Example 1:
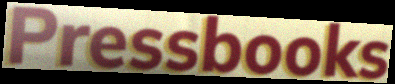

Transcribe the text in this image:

Pressbooks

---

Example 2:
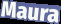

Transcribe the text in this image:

Maura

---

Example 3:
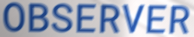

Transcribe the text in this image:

OBSERVER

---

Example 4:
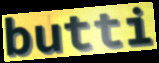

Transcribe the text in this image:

butti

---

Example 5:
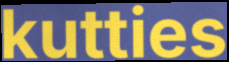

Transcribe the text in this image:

kutties